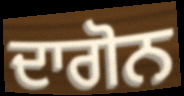
ਦਾਗੋਨ